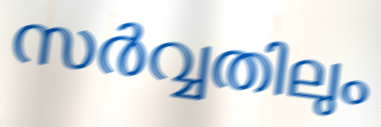
സർവ്വതിലും